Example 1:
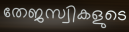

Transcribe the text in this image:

തേജസ്വികളുടെ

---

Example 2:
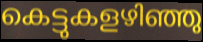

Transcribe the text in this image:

കെട്ടുകളഴിഞ്ഞു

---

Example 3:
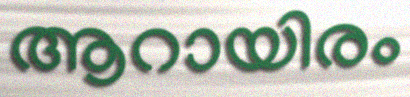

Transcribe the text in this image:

ആറായിരം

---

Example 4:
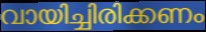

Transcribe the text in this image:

വായിച്ചിരിക്കണം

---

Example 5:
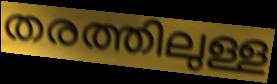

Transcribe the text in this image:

തരത്തിലുള്ള